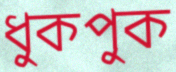
ধুকপুক